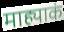
माह्याकं